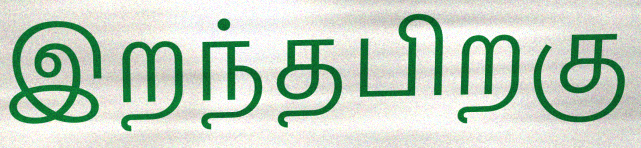
இறந்தபிறகு